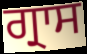
ਗ੍ਰਾਸ